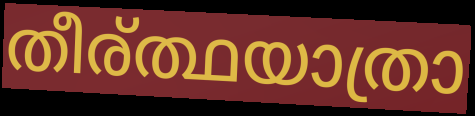
തീര്ത്ഥയാത്രാ